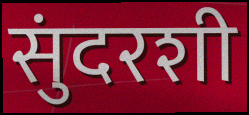
सुंदरशी